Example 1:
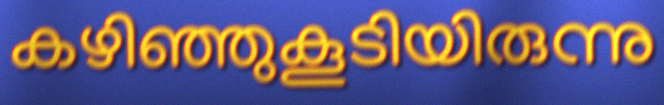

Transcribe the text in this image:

കഴിഞ്ഞുകൂടിയിരുന്നു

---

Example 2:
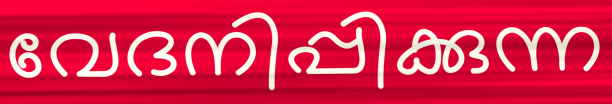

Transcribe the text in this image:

വേദനിപ്പിക്കുന്ന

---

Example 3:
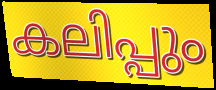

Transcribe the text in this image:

കലിപ്പും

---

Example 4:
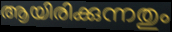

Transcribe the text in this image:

ആയിരിക്കുന്നതും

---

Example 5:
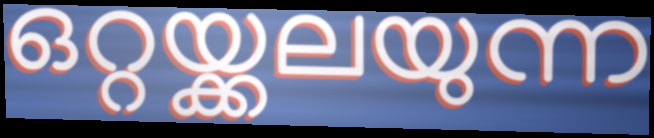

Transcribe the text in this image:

ഒറ്റയ്ക്കലയുന്ന